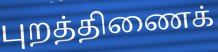
புறத்திணைக்